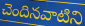
చెందినవాటిని